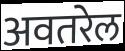
अवतरेल